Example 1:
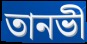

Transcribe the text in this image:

তানভী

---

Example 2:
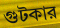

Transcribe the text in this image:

গুটকার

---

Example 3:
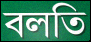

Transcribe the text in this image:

বলতি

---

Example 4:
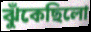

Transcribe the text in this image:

ঝুঁকেছিলো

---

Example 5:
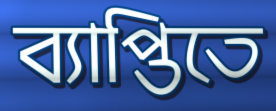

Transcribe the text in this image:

ব্যাপ্তিতে